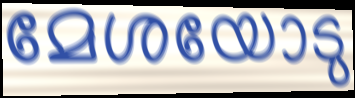
മേശയോടു